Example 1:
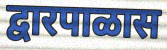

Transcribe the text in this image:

द्वारपाळास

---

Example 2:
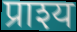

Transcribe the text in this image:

प्राश्य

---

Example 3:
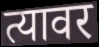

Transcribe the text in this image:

त्यावर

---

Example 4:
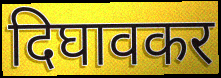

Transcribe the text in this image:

दिघावकर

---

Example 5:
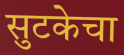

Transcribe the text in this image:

सुटकेचा